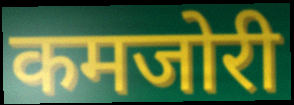
कमजोरी